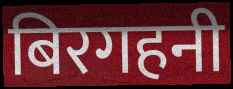
बिरगहनी